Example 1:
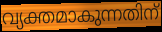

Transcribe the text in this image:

വ്യക്തമാകുന്നതിന്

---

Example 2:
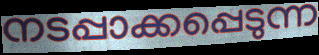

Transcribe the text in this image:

നടപ്പാക്കപ്പെടുന്ന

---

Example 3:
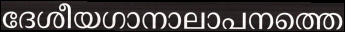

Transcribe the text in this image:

ദേശീയഗാനാലാപനത്തെ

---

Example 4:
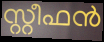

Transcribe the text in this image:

സ്റ്റീഫൻ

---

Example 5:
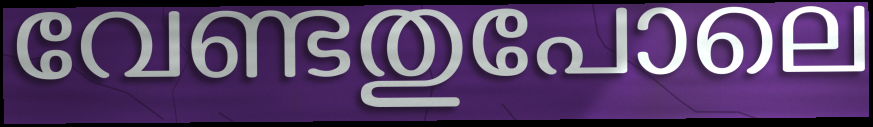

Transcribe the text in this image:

വേണ്ടതുപോലെ